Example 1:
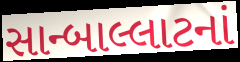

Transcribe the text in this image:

સાન્બાલ્લાટનાં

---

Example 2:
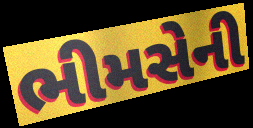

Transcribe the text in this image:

ભીમસેની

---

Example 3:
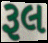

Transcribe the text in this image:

રૂલ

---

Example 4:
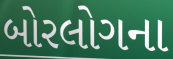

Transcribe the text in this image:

બોરલોગના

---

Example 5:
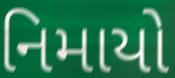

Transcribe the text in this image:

નિમાયો